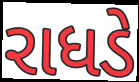
રાધડે